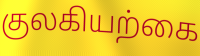
குலகியற்கை